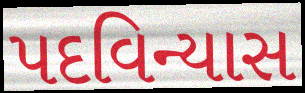
પદવિન્યાસ